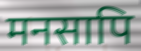
मनसापि